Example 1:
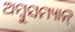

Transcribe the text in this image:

ଅମ୍ବୁସମ୍ୟାନ୍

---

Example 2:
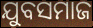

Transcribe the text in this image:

ଯୁବସମାଜ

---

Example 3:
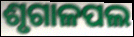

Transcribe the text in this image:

ଶୃଗାଳପଲ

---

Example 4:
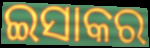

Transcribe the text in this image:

ଇସାକର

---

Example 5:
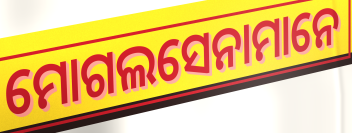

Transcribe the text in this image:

ମୋଗଲସେନାମାନେ